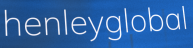
henleyglobal